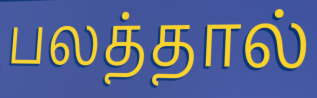
பலத்தால்